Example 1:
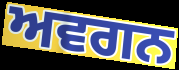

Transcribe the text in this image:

ਅਵਗਨ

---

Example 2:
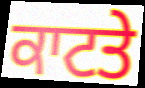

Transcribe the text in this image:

ਕਾਟਤੇ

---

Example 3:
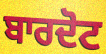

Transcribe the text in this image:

ਬਾਰਦੋਟ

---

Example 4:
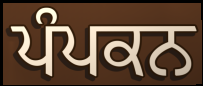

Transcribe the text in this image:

ਪੰਪਕਨ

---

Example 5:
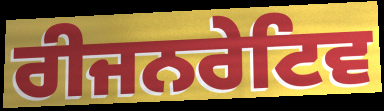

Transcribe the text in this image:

ਰੀਜਨਰੇਟਿਵ